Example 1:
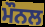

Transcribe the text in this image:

ਮੌਨਲ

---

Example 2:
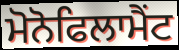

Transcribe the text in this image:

ਮੋਨੋਫਿਲਾਮੈਂਟ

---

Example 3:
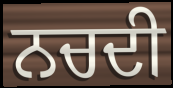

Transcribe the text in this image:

ਨਚਦੀ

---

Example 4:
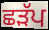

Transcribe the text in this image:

ਛੜੱਪ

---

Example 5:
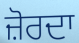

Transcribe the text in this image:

ਜ਼ੋਰਦਾ